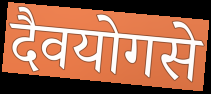
दैवयोगसे